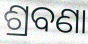
ଶ୍ରବଣା